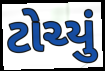
ટોચ્યું